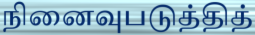
நினைவுபடுத்தித்